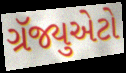
ગ્રૅજ્યુએટો